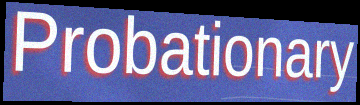
Probationary